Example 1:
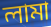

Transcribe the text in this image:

লামা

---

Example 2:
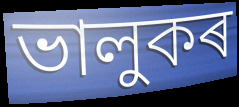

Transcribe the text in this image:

ভালুকৰ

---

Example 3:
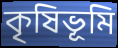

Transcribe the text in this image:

কৃষিভূমি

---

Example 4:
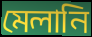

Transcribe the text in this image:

মেলানি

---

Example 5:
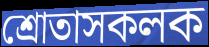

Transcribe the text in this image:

শ্ৰোতাসকলক